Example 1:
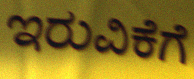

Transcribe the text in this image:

ಇರುವಿಕೆಗೆ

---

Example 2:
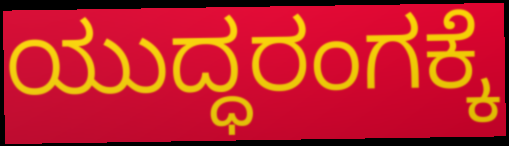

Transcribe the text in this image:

ಯುದ್ಧರಂಗಕ್ಕೆ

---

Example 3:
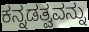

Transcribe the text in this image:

ಕನ್ನಡತ್ವವನ್ನು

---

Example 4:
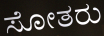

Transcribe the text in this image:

ಸೋತರು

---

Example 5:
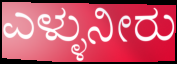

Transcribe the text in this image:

ಎಳ್ಳುನೀರು